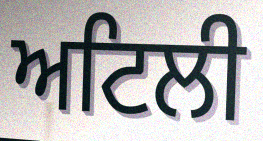
ਅਟਿਲੀ